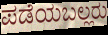
ಪಡೆಯಬಲ್ಲರು